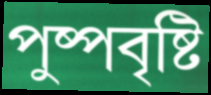
পুষ্পবৃষ্টি